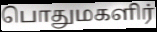
பொதுமகளிர்